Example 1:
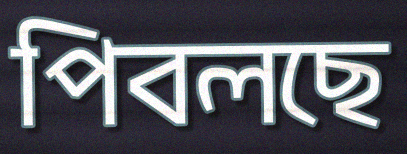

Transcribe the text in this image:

পিবলছে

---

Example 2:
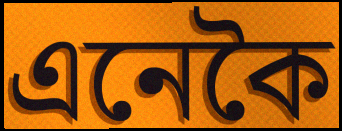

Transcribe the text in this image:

এনেকৈ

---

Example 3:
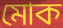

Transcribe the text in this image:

মোক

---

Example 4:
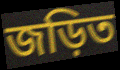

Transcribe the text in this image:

জড়িত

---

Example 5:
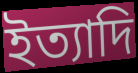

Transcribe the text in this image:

ইত্যাদি